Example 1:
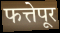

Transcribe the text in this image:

फत्तेपूर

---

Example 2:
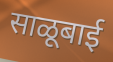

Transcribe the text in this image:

साळूबाई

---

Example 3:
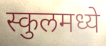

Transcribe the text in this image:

स्कुलमध्ये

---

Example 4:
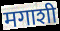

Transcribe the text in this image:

मगाशी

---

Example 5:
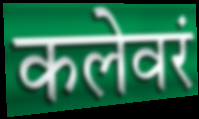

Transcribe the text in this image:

कलेवरं